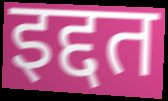
इद्दत